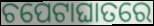
ଚପେଟାଘାତରେ